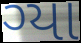
ગ્યા